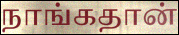
நாங்கதான்